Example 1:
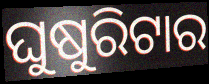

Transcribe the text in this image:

ଘୁଷୁରିଟାର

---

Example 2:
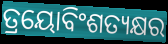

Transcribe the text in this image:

ତ୍ରୟୋବିଂଶତ୍ୟକ୍ଷର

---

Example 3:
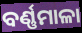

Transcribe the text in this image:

ବର୍ଣ୍ଣମାଳା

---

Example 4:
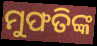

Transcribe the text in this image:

ମୁଫତିଙ୍କ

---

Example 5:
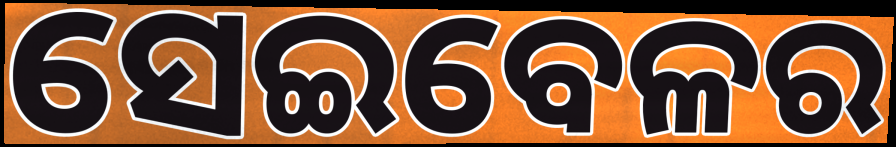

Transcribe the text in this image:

ସେଇବେଳର